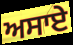
ਅਸਾਏ